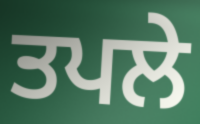
ਤਪਲੇ